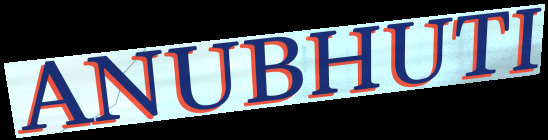
ANUBHUTI